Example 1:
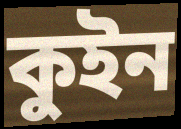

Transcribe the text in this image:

কুইন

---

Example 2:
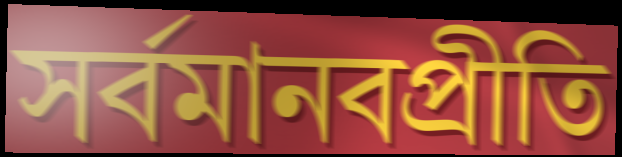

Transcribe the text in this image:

সর্বমানবপ্রীতি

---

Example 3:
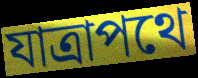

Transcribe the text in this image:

যাত্রাপথে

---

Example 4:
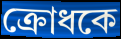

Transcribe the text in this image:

ক্রোধকে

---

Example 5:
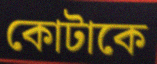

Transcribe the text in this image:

কোটাকে